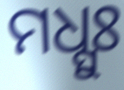
ମଧ୍ସୁଃ